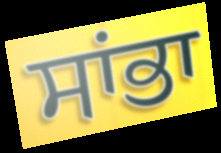
ਸਾਂਭਾ